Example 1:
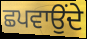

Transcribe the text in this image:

ਛਪਵਾਉਂਦੇ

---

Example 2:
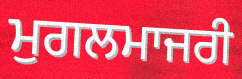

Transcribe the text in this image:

ਮੁਗਲਮਾਜਰੀ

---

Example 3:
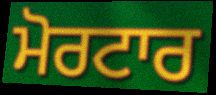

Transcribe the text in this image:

ਮੋਰਟਾਰ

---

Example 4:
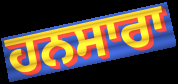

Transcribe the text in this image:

ਹਨਸਾਰਾ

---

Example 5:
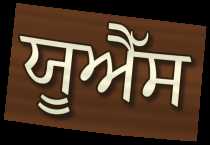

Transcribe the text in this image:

ਯੂਐੱਸ